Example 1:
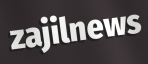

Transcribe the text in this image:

zajilnews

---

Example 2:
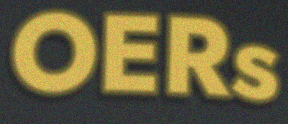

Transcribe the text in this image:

OERs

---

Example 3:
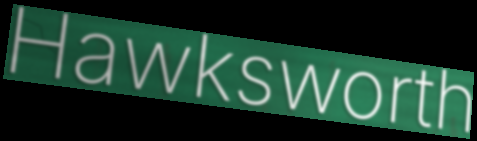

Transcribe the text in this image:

Hawksworth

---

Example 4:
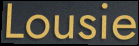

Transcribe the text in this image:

Lousie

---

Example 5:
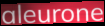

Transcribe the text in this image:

aleurone